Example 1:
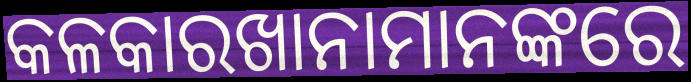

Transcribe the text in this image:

କଳକାରଖାନାମାନଙ୍କରେ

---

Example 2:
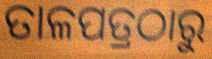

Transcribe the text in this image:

ତାଳପତ୍ରଠାରୁ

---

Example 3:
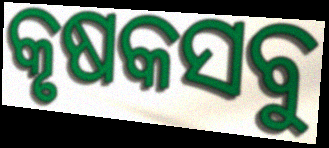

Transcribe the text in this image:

କୃଷକସବୁ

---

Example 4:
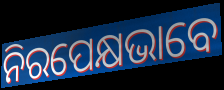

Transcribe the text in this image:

ନିରପେକ୍ଷଭାବେ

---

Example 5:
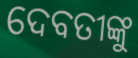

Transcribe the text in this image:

ଦେବତୀଙ୍କୁ